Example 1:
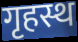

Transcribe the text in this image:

गृहस्थ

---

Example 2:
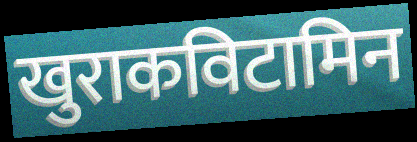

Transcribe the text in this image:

खुराकविटामिन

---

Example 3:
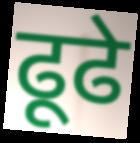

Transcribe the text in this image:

ढूढे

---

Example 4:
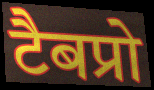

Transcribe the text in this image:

टैबप्रो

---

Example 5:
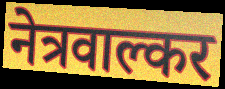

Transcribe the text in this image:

नेत्रवाल्कर